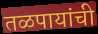
तळपायांची